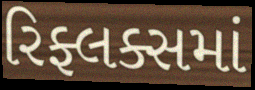
રિફ્લક્સમાં